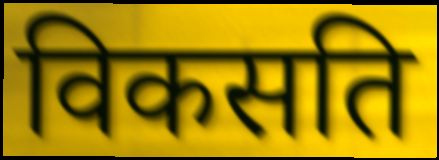
विकसति